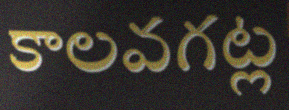
కాలవగట్ల